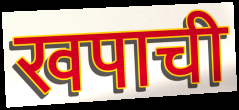
खपाची